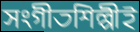
সংগীতশিল্পীই